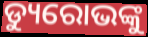
ଡ୍ୟୁରୋଭଙ୍କୁ